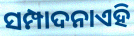
ସମ୍ପାଦନାଏହି